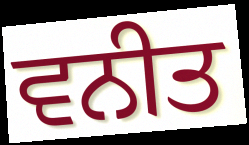
ਵਨੀਤ